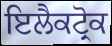
ਇਲੈਕਟ੍ਰੋਕ